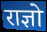
राज्ञो